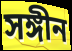
সঙ্গীন